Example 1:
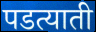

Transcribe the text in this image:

पडत्याती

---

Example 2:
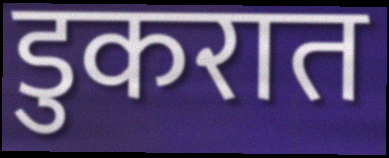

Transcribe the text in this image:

डुकरात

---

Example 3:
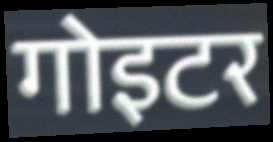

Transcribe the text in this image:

गोइटर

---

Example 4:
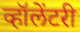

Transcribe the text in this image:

व्हॉलेंटरी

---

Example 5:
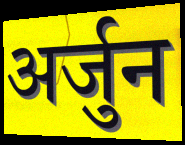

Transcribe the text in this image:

अर्जुन